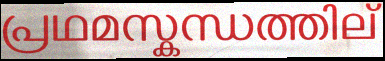
പ്രഥമസ്കന്ധത്തില്